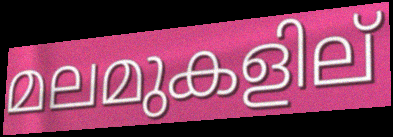
മലമുകളില്